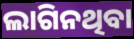
ଲାଗିନଥିବା